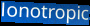
Ionotropic